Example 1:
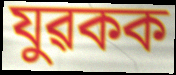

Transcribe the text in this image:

যুৱকক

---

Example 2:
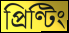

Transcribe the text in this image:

প্ৰিণ্টিং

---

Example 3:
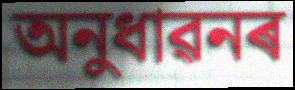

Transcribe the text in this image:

অনুধাৱনৰ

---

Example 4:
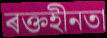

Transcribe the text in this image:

ৰক্তহীনতা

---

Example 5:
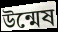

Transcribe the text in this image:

উন্মেষ